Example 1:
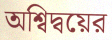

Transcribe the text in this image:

অশ্বিদ্বয়ের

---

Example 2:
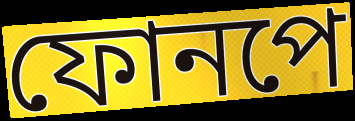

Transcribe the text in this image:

ফোনপে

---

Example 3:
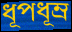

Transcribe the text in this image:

ধূপধূম্র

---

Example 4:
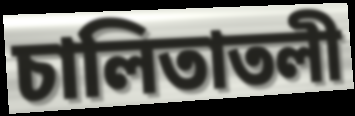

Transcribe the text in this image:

চালিতাতলী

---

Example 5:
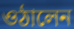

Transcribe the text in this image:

ওঠালেন